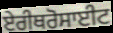
ਏਰੀਥਰੋਸਾਈਟ